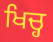
ਖਿਚ੍ਹ